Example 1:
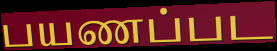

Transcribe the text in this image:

பயணப்பட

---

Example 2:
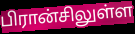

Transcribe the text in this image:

பிரான்சிலுள்ள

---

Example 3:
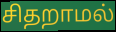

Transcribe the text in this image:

சிதறாமல்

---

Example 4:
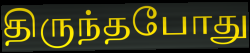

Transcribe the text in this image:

திருந்தபோது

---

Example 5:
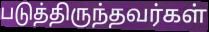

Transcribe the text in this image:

படுத்திருந்தவர்கள்